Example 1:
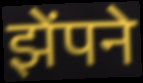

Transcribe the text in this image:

झेंपने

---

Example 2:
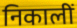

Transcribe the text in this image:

निकालीं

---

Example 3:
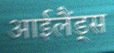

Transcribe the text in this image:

आईलैंड्स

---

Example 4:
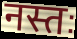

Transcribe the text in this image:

नस्तः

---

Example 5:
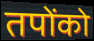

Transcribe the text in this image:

तपोंको